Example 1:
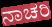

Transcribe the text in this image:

ನಾಚರಿ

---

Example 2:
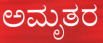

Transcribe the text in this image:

ಅಮೃತರ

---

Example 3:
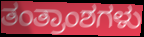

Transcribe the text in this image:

ತಂತ್ರಾಂಶಗಳು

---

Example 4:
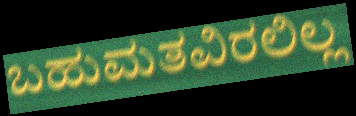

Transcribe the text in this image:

ಬಹುಮತವಿರಲಿಲ್ಲ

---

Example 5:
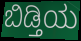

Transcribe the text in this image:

ಬಿಡ್ತಿಯ